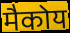
मैकोय